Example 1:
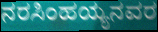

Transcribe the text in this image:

ನರಸಿಂಹಯ್ಯನವರ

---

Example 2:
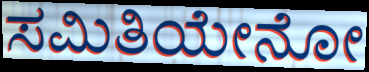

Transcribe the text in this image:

ಸಮಿತಿಯೇನೋ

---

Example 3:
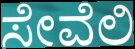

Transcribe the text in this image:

ಸೇವೆಲಿ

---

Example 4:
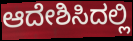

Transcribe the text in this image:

ಆದೇಶಿಸಿದಲ್ಲಿ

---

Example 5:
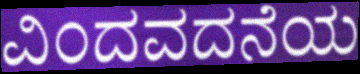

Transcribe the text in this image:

ವಿಂದವದನೆಯ